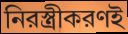
নিরস্ত্রীকরণই